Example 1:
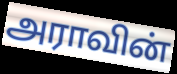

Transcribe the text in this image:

அராவின்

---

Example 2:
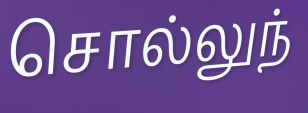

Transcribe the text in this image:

சொல்லுந்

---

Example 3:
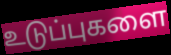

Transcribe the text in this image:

உடுப்புகளை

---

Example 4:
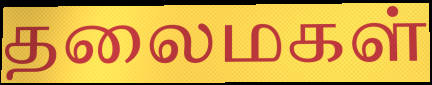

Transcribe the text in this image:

தலைமகள்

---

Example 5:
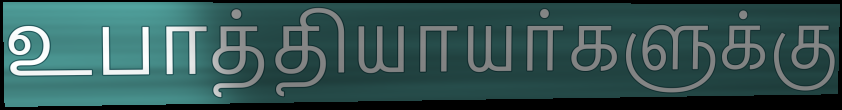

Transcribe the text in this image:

உபாத்தியாயர்களுக்கு